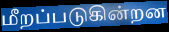
மீறப்படுகின்றன